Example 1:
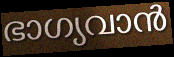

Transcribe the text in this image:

ഭാഗ്യവാൻ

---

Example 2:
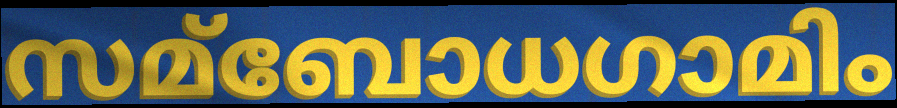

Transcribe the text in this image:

സമ്ബോധഗാമിം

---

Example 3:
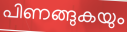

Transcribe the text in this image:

പിണങ്ങുകയും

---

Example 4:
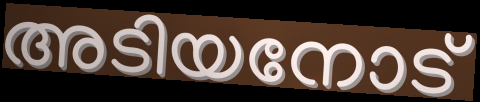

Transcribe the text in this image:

അടിയനോട്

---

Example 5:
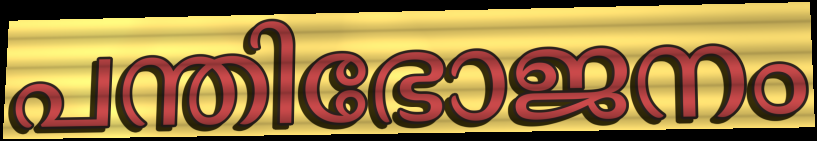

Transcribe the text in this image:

പന്തിഭോജനം